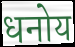
धनोय